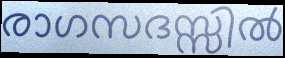
രാഗസദസ്സിൽ